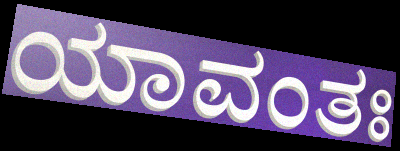
ಯಾವಂತಃ